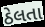
ઠેલતા